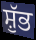
ਸ਼ੁੱਭ